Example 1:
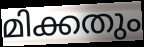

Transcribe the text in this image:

മിക്കതും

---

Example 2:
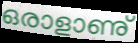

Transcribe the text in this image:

ഒരാളാണു്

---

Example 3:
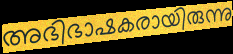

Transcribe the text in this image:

അഭിഭാഷകരായിരുന്നു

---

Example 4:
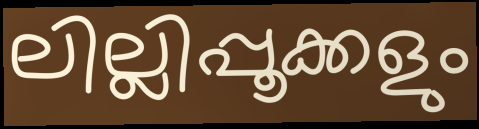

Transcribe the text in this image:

ലില്ലിപ്പൂക്കളും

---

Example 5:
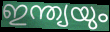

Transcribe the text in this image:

ഇന്ത്യയും